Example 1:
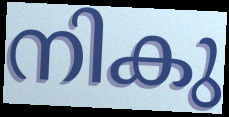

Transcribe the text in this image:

നികു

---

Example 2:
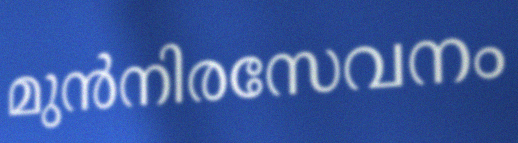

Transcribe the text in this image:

മുൻനിരസേവനം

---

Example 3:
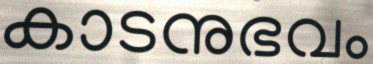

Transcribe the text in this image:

കാടനുഭവം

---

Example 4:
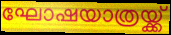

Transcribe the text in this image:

ഘോഷയാത്രയ്ക്ക്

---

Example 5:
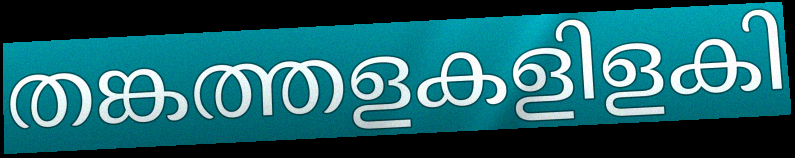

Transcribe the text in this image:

തങ്കത്തളകളിളകി